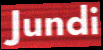
Jundi